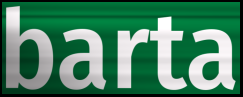
barta